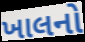
ખાલનો